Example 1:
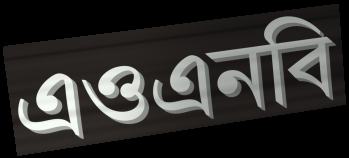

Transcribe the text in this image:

এওএনবি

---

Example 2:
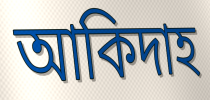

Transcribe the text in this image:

আকিদাহ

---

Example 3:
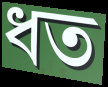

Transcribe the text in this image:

ধত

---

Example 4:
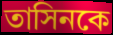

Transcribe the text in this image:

তাসিনকে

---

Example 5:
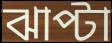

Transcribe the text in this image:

ঝাপ্টা